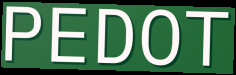
PEDOT